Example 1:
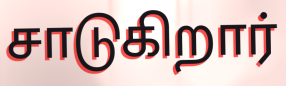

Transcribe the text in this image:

சாடுகிறார்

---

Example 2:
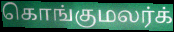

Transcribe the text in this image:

கொங்குமலர்க்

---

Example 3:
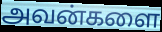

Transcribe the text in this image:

அவன்களை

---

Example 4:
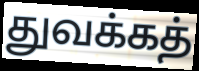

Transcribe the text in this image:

துவக்கத்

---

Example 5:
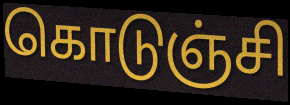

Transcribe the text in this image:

கொடுஞ்சி